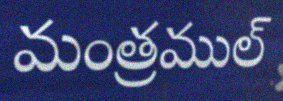
మంత్రముల్